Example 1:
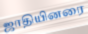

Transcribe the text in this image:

ஜாதியினரை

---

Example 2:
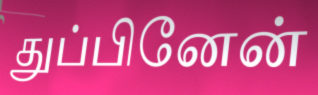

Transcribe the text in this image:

துப்பினேன்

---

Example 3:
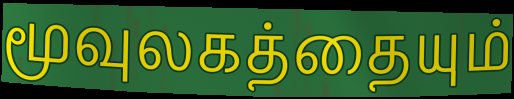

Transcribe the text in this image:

மூவுலகத்தையும்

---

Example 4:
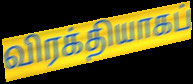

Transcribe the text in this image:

விரக்தியாகப்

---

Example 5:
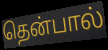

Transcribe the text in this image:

தென்பால்